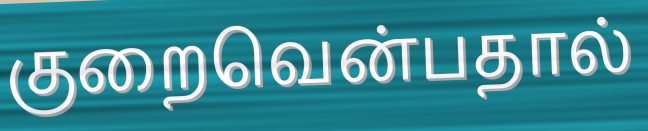
குறைவென்பதால்